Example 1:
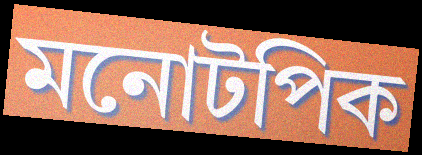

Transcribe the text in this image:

মনোটপিক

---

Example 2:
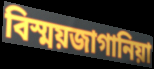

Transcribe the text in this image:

বিস্ময়জাগানিয়া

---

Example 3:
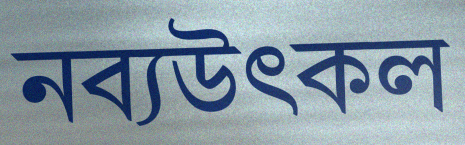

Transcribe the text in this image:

নব্যউৎকল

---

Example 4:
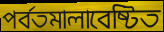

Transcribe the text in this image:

পর্বতমালাবেষ্টিত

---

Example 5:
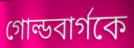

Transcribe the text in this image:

গোল্ডবার্গকে